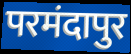
परमंदापुर